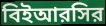
বিইআরসির